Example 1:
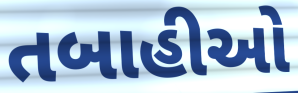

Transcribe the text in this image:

તબાહીઓ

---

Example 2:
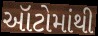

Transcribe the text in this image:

ઑટોમાંથી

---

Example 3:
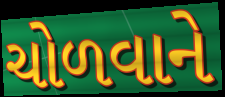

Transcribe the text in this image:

ચોળવાને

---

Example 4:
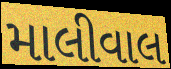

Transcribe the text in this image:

માલીવાલ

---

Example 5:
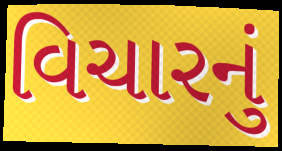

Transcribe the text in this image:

વિચારનું